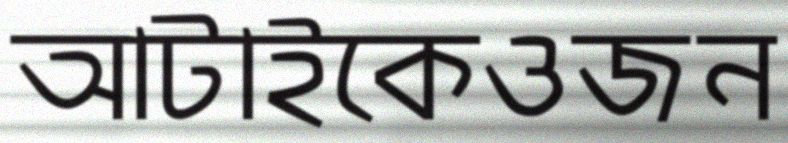
আটাইকেওজন